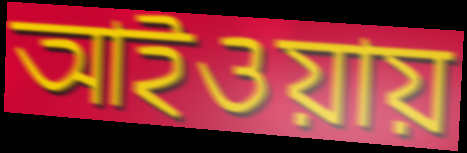
আইওয়ায়